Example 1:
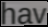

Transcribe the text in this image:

hav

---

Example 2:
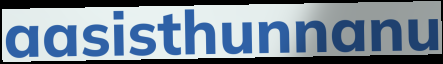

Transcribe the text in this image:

aasisthunnanu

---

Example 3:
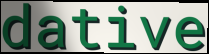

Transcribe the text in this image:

dative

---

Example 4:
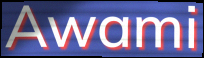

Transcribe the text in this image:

Awami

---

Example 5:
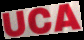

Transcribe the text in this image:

UCA